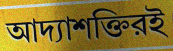
আদ্যাশক্তিরই